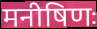
मनीषिणः